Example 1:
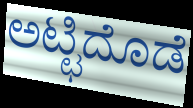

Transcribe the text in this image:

ಅಟ್ಟಿದೊಡೆ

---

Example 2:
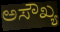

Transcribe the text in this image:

ಅಸೌಖ್ಯ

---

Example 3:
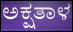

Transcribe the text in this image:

ಅಕ್ಷತಾಳ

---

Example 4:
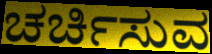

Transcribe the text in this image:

ಚರ್ಚಿಸುವ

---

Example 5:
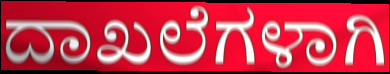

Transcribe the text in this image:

ದಾಖಲೆಗಳಾಗಿ